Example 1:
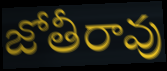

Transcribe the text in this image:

జోతీరావు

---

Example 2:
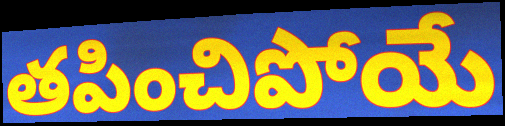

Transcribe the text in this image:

తపించిపోయే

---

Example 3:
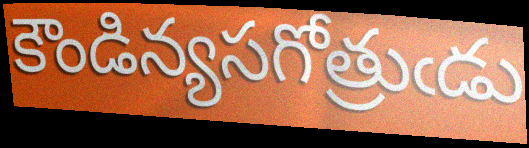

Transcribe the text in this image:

కౌండిన్యసగోత్రుఁడు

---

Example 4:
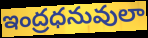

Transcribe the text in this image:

ఇంద్రధనువులా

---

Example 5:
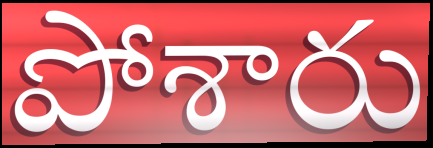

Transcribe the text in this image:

పోశారు